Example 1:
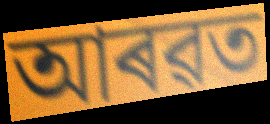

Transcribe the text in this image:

আৰৱত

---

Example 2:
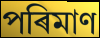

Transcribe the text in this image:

পৰিমাণ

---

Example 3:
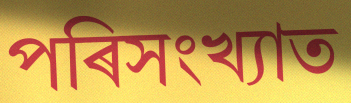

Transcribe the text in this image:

পৰিসংখ্যাত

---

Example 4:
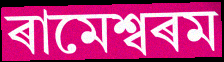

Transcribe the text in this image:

ৰামেশ্বৰম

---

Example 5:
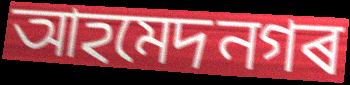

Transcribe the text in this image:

আহমেদনগৰ